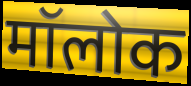
मॉलोक